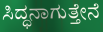
ಸಿದ್ಧನಾಗುತ್ತೇನೆ